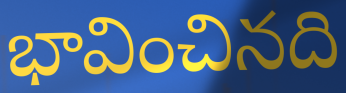
భావించినది